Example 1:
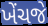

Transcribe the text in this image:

ખેંચજે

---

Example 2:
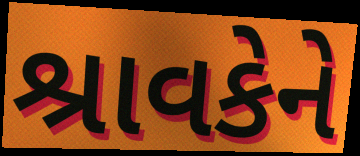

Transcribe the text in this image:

શ્રાવકેને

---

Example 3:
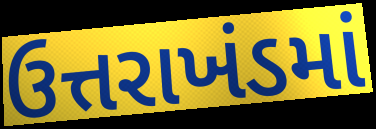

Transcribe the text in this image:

ઉત્તરાખંડમાં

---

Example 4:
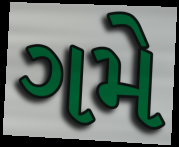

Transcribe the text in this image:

ગમે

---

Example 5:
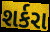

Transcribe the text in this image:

શર્કરા